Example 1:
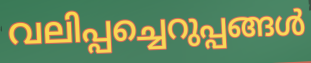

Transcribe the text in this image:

വലിപ്പച്ചെറുപ്പങ്ങൾ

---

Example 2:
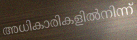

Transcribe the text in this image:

അധികാരികളിൽനിന്ന്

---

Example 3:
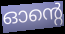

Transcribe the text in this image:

ഓന്റെ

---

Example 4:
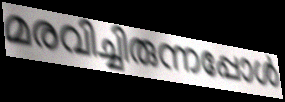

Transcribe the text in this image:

മരവിച്ചിരുന്നപ്പോൾ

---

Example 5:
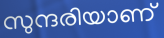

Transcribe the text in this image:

സുന്ദരിയാണ്